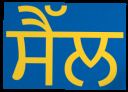
ਸੈੱਲ